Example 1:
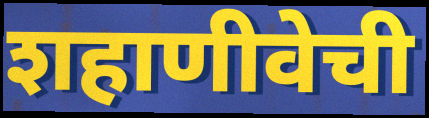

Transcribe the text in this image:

शहाणीवेची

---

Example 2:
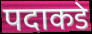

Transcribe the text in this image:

पदाकडे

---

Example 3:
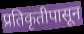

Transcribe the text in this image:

प्रतिकृतीपासून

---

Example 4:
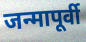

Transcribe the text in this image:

जन्मापूर्वी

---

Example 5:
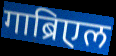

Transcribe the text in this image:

गाब्रिएल